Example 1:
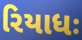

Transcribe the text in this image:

રિયાધઃ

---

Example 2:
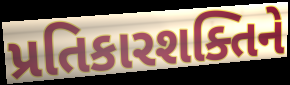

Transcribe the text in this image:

પ્રતિકારશક્તિને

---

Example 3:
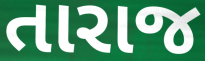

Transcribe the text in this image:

તારાજ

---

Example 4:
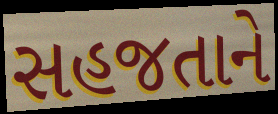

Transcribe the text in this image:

સહજતાને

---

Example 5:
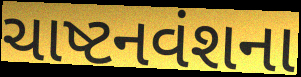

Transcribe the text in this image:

ચાષ્ટનવંશના